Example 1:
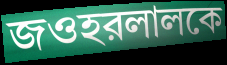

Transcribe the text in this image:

জওহরলালকে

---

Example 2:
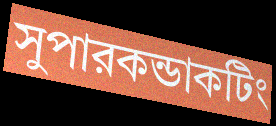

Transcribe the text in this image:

সুপারকন্ডাকটিং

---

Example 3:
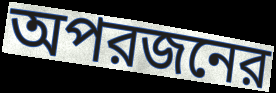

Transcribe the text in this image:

অপরজনের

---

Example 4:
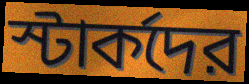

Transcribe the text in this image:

স্টার্কদের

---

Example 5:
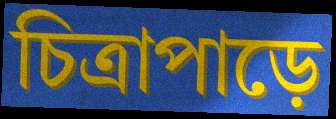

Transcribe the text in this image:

চিত্রাপাড়ে